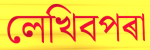
লেখিবপৰা